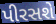
પીરસશે